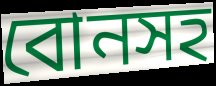
বোনসহ